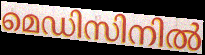
മെഡിസിനിൽ